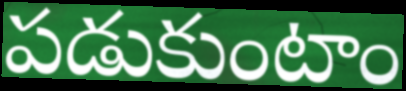
పడుకుంటాం